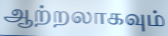
ஆற்றலாகவும்